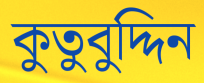
কুতুবুদ্দিন